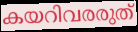
കയറിവരരുത്